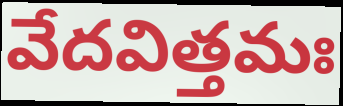
వేదవిత్తమః